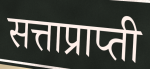
सत्ताप्राप्ती